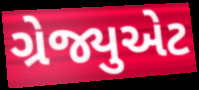
ગ્રેજ્યુએટ